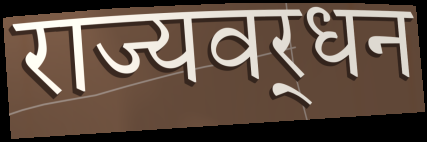
राज्यवर्धन